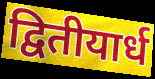
द्वितीयार्ध